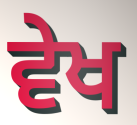
ਵੇਖ